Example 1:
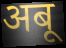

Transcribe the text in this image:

अबू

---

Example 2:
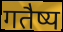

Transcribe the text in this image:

गतैष्य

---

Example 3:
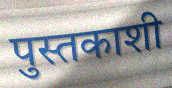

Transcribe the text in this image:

पुस्तकाशी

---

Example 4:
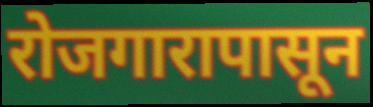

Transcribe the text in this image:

रोजगारापासून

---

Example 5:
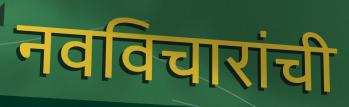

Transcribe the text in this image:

नवविचारांची